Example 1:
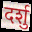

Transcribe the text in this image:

दर्शु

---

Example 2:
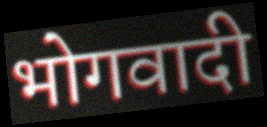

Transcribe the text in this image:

भोगवादी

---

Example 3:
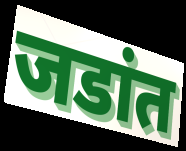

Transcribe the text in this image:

जडांत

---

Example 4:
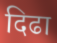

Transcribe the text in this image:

दिढा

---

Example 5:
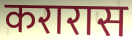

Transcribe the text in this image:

करारास